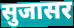
सुजासर